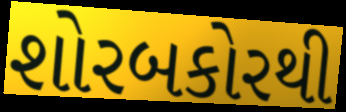
શોરબકોરથી